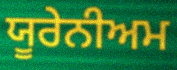
ਯੂਰੇਨੀਅਮ